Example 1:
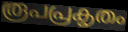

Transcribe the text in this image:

രൂപപ്രകൃതം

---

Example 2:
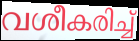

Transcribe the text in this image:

വശീകരിച്ച്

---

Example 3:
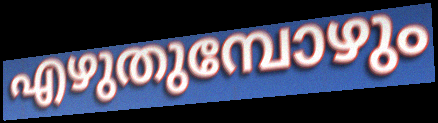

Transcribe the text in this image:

എഴുതുമ്പോഴും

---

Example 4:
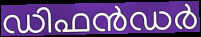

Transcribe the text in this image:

ഡിഫൻഡർ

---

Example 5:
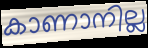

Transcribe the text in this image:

കാണാനില്ല